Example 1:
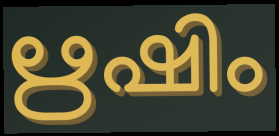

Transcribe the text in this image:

ഋഷിം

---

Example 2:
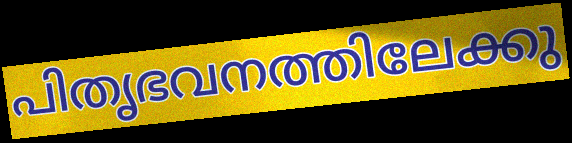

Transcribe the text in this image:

പിതൃഭവനത്തിലേക്കു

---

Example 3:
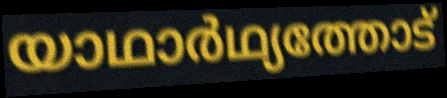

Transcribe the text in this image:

യാഥാർഥ്യത്തോട്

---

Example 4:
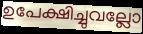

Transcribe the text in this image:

ഉപേക്ഷിച്ചുവല്ലോ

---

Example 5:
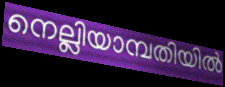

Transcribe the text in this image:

നെല്ലിയാമ്പതിയിൽ